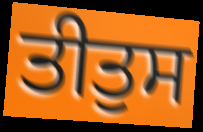
ਤੀਤੁਸ